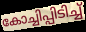
കോച്ചിപ്പിടിച്ച്